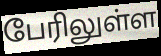
பேரிலுள்ள